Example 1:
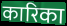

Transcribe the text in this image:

कारिका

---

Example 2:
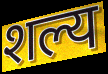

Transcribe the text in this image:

शल्‍य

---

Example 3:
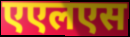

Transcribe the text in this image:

एएलएस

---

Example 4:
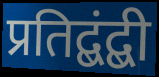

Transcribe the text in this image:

प्रतिद्बंद्बी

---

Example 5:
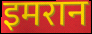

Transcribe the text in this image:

इमरान